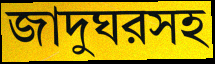
জাদুঘরসহ